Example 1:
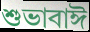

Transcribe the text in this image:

শুভাবাঈ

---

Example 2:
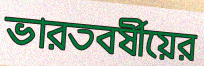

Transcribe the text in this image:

ভারতবর্ষীয়ের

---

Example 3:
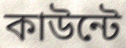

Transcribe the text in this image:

কাউন্টে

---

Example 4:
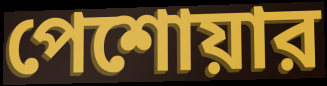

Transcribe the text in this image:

পেশোয়ার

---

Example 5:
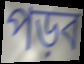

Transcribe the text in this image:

পড়ব